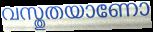
വസ്തുതയാണോ